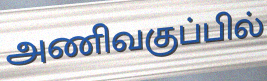
அணிவகுப்பில்